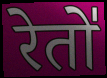
रेतो॑